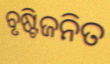
ବୃଷ୍ଟିଜନିତ